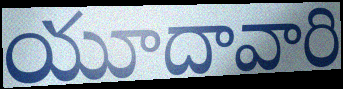
యూదావారి